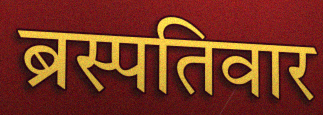
ब्रस्पतिवार